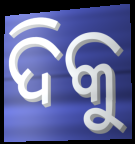
ଦିକୁ